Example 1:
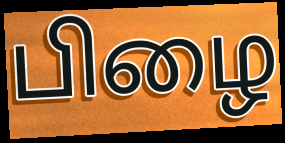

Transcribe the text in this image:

பிழை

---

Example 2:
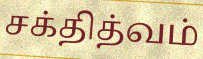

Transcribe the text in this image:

சக்தித்வம்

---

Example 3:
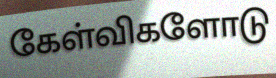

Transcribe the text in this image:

கேள்விகளோடு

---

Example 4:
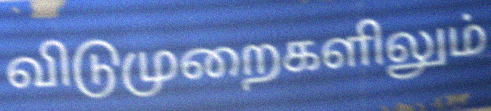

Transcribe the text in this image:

விடுமுறைகளிலும்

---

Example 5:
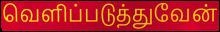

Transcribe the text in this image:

வெளிப்படுத்துவேன்